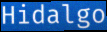
Hidalgo